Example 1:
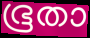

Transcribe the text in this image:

ഭൂതാ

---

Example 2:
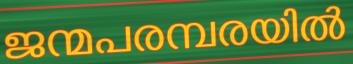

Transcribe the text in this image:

ജന്മപരമ്പരയിൽ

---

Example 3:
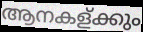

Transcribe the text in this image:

ആനകള്ക്കും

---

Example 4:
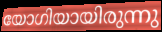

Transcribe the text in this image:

യോഗിയായിരുന്നു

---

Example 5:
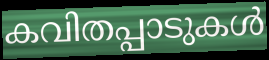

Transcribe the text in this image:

കവിതപ്പാടുകൾ